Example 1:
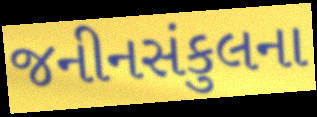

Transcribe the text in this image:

જનીનસંકુલના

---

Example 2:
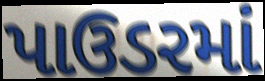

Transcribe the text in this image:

પાઉડરમાં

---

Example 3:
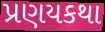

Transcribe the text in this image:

પ્રણયકથા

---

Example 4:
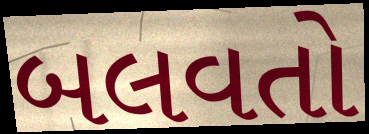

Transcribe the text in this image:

બલવતો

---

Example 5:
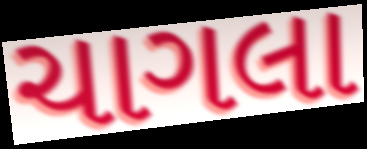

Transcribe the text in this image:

ચાગલા